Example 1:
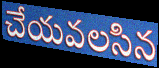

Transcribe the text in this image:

చేయవలసిన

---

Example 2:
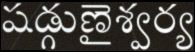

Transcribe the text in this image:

షడ్గుణైశ్వర్య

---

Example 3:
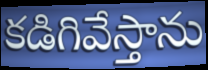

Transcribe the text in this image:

కడిగివేస్తాను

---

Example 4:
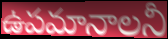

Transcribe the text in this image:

ఉపమానాలనీ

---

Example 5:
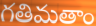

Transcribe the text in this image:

గతిమతాం